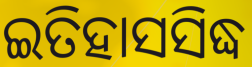
ଇତିହାସସିଦ୍ଧ